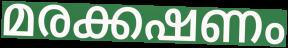
മരക്കഷണം